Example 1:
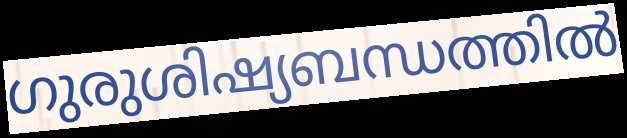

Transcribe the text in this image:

ഗുരുശിഷ്യബന്ധത്തിൽ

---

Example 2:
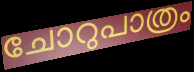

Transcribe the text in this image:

ചോറുപാത്രം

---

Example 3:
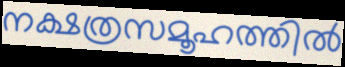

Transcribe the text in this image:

നക്ഷത്രസമൂഹത്തിൽ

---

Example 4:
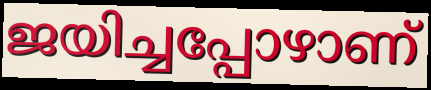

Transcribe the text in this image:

ജയിച്ചപ്പോഴാണ്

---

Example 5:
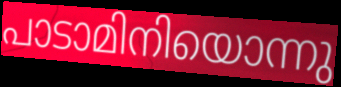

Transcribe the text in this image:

പാടാമിനിയൊന്നു